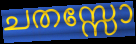
ചതസ്സോ